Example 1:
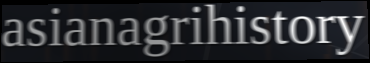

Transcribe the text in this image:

asianagrihistory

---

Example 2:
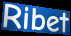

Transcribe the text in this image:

Ribet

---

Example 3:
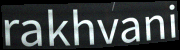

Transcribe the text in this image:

rakhvani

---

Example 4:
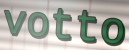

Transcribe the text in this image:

votto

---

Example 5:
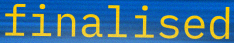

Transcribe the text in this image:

finalised